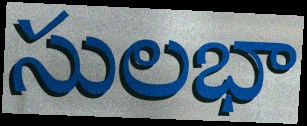
సులభా